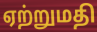
ஏற்றுமதி